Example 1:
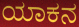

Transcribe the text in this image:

ಯಾಕನ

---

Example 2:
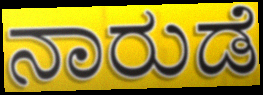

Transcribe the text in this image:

ನಾರುಡೆ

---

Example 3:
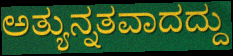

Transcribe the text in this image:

ಅತ್ಯುನ್ನತವಾದದ್ದು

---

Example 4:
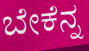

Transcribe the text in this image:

ಬೇಕೆನ್ನ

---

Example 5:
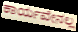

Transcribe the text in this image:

ಕಾರ್ಯವೇನಲ್ಲ